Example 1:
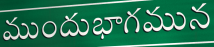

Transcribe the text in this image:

ముందుభాగమున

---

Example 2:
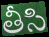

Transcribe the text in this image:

తీసి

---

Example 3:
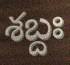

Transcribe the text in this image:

శబ్దః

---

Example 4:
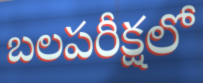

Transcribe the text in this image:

బలపరీక్షలో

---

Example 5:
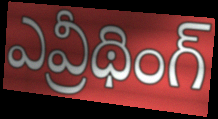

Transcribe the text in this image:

ఎవ్రీథింగ్